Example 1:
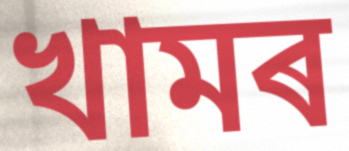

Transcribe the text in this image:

খামৰ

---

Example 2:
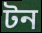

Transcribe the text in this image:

টন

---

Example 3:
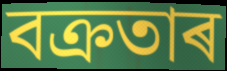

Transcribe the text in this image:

বক্ৰতাৰ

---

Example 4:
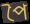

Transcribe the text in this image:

পৈ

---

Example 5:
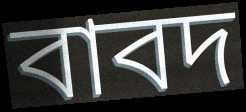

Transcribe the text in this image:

বাবদ